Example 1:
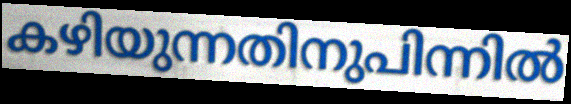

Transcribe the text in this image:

കഴിയുന്നതിനുപിന്നിൽ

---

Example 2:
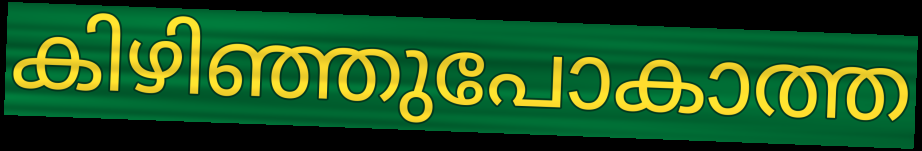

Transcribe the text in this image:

കിഴിഞ്ഞുപോകാത്ത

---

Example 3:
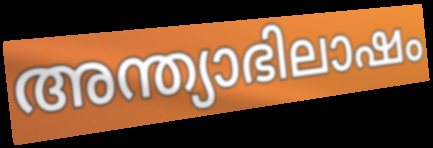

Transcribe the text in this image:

അന്ത്യാഭിലാഷം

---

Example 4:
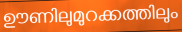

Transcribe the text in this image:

ഊണിലുമുറക്കത്തിലും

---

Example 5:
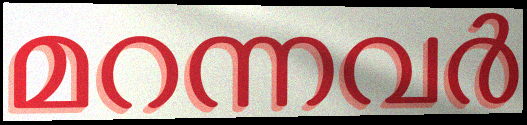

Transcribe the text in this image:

മറന്നവർ